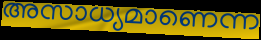
അസാധ്യമാണെന്ന